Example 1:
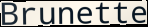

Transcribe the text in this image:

Brunette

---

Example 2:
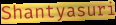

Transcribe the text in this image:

Shantyasuri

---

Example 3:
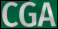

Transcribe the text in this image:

CGA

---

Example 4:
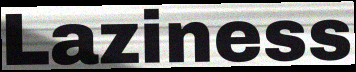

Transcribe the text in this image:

Laziness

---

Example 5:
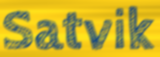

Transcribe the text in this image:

Satvik